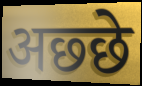
अछ्छे